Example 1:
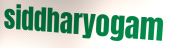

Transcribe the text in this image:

siddharyogam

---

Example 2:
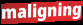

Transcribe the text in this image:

maligning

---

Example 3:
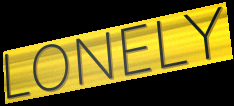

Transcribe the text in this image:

LONELY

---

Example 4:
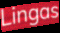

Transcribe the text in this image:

Lingas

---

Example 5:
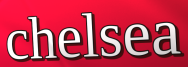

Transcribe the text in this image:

chelsea